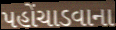
પહોંચાડવાના